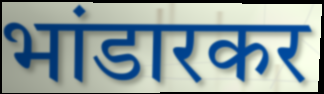
भांडारकर